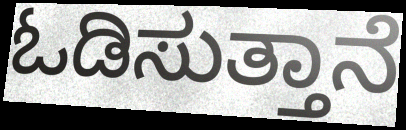
ಓಡಿಸುತ್ತಾನೆ